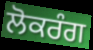
ਲੋਕਰੰਗ